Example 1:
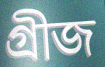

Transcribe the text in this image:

গ্ৰীজ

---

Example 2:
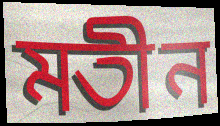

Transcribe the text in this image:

মতীন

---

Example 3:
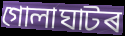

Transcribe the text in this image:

গোলাঘাটৰ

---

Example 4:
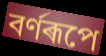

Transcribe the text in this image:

বৰ্ণৰূপে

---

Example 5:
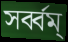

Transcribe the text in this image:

সৰ্ব্বম্